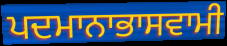
ਪਦਮਾਨਾਭਾਸਵਾਮੀ